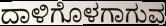
ದಾಳಿಗೊಳಗಾಗುವ